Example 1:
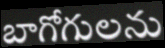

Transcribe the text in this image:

బాగోగులను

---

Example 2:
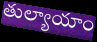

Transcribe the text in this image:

తుల్యాయాం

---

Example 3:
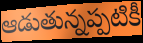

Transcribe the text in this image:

ఆడుతున్నప్పటికీ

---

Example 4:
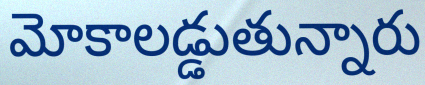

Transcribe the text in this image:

మోకాలడ్డుతున్నారు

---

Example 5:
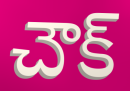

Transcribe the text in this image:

చౌక్